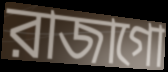
রাজাগো